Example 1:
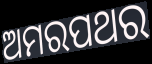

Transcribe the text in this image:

ଅମରପଥର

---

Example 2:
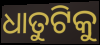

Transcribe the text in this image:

ଧାତୁଟିକୁ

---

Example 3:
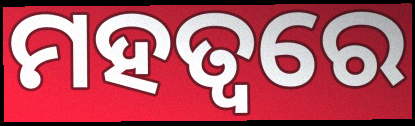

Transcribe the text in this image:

ମହତ୍ୱରେ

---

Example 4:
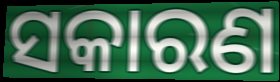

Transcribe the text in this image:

ସକାରଣ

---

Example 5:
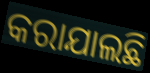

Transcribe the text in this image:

କରାଯାଲଛି